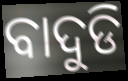
ବାଦୁଡି